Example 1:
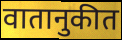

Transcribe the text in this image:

वातानुकीत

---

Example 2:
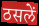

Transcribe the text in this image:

ठसलें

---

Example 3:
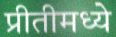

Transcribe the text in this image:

प्रीतीमध्ये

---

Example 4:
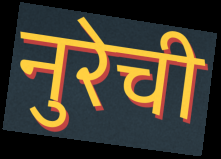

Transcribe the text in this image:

नुरेची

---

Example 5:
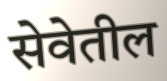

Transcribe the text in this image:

सेवेतील